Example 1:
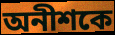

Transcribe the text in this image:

অনীশকে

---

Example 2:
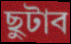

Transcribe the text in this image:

ছুটাব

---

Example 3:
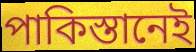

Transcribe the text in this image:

পাকিস্তানেই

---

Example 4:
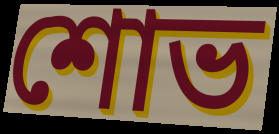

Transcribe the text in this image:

শোভ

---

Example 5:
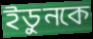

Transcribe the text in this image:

ইডুনকে